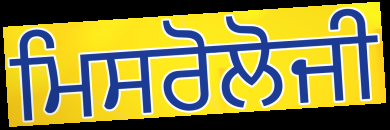
ਮਿਸਰੋਲੋਜੀ